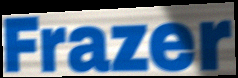
Frazer